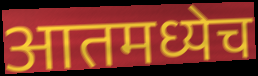
आतमध्येच